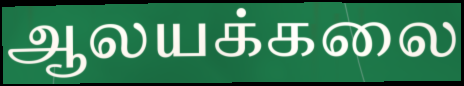
ஆலயக்கலை